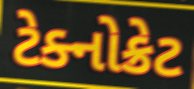
ટેક્નોક્રેટ